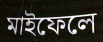
মাইফেলে